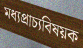
মধ্যপ্রাচ্যবিষয়ক